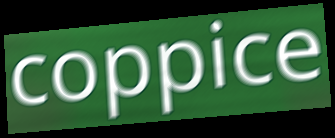
coppice